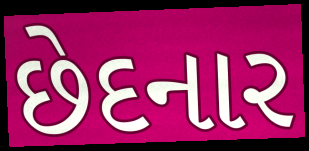
છેદનાર